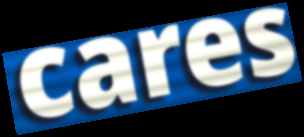
cares